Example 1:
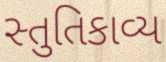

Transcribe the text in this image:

સ્તુતિકાવ્ય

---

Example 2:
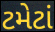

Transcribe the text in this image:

ટમેટાં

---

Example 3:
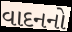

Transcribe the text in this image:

વાદનનો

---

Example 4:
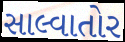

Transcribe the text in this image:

સાલ્વાતોર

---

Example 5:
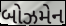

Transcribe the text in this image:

બોઝમેન